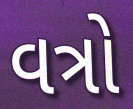
વત્રો